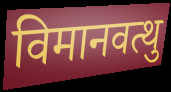
विमानवत्थु